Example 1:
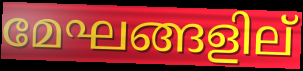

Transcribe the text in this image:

മേഘങ്ങളില്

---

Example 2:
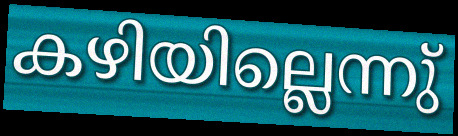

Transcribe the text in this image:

കഴിയില്ലെന്നു്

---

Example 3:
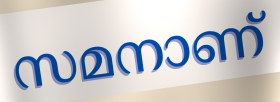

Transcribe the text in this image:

സമനാണ്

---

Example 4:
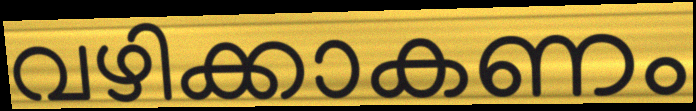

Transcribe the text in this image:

വഴിക്കാകണം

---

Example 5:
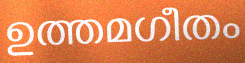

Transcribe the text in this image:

ഉത്തമഗീതം